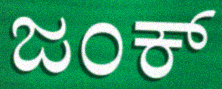
ಜಂಕ್